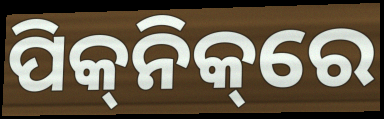
ପିକ୍‌ନିକ୍‌ରେ